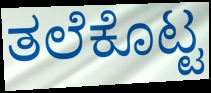
ತಲೆಕೊಟ್ಟ